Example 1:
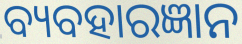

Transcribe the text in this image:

ବ୍ୟବହାରଜ୍ଞାନ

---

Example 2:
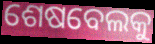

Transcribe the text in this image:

ଶେଷବେଲକୁ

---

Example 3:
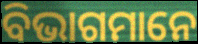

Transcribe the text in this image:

ବିଭାଗମାନେ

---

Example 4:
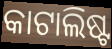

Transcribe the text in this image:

କାଟାଲିଷ୍ଟ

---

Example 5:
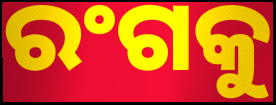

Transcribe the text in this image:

ରଂଗକୁ